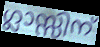
ഗ്ലാസ്സിന്